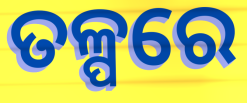
ତଳ୍ପରେ